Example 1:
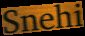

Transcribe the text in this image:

Snehi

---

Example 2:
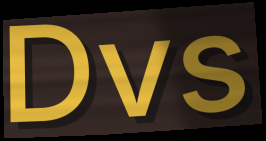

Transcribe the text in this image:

Dvs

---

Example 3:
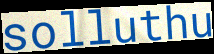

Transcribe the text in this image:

solluthu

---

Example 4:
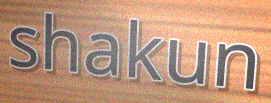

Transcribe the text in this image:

shakun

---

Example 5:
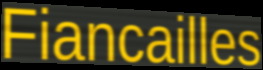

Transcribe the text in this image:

Fiancailles